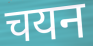
चयन